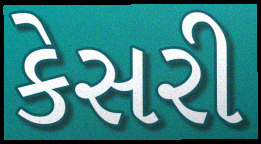
કેસરી